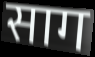
साग